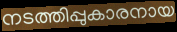
നടത്തിപ്പുകാരനായ